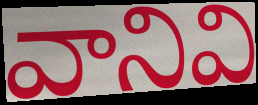
వానివి